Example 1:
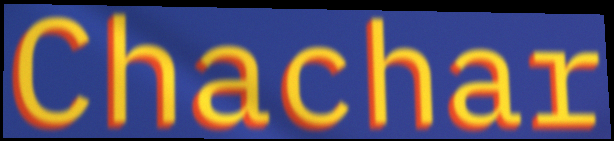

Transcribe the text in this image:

Chachar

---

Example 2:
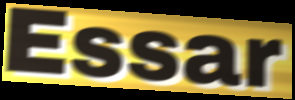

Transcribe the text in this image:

Essar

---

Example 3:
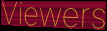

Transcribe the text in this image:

Viewers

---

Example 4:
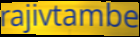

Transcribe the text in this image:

rajivtambe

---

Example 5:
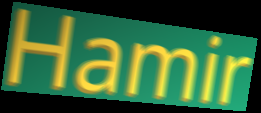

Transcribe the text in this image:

Hamir